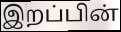
இறப்பின்